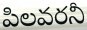
పిలవరనీ